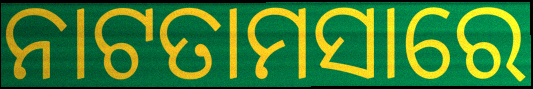
ନାଟତାମସାରେ